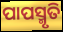
ପାପସ୍ମୃତି